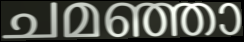
ചമഞ്ഞാ